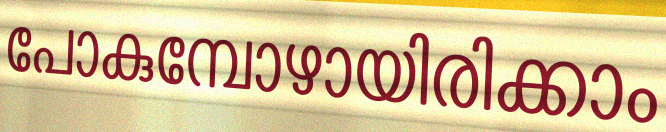
പോകുമ്പോഴായിരിക്കാം